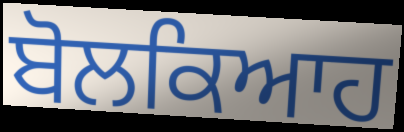
ਬੋਲਕਿਆਹ